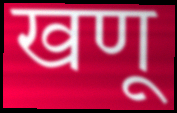
खणू